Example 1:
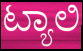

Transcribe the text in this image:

ಟ್ಯಾಲಿ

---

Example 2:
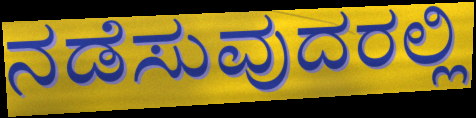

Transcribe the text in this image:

ನಡೆಸುವುದರಲ್ಲಿ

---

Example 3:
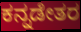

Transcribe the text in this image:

ಕನ್ನಡೇತರ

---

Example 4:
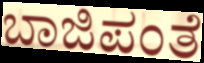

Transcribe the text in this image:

ಬಾಜಿಪಂತೆ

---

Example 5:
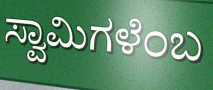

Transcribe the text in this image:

ಸ್ವಾಮಿಗಳೆಂಬ